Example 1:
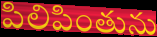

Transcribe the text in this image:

పిలిపింతును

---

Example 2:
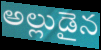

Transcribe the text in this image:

అల్లుడైన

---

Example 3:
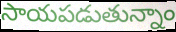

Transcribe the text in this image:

సాయపడుతున్నాం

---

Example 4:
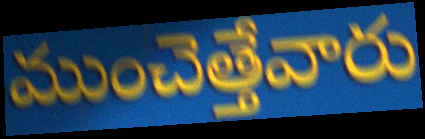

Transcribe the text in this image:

ముంచెత్తేవారు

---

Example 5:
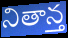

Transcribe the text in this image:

నితాన్త